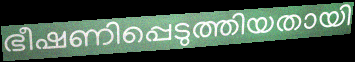
ഭീഷണിപ്പെടുത്തിയതായി